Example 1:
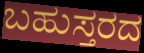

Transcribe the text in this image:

ಬಹುಸ್ತರದ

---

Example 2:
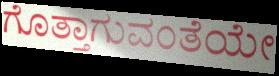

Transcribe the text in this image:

ಗೊತ್ತಾಗುವಂತೆಯೇ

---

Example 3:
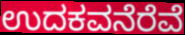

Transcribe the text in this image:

ಉದಕವನೆರೆವೆ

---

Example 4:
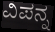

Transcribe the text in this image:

ವಿಪನ್ನ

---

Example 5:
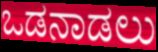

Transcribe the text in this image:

ಒಡನಾಡಲು